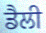
ਡੈਲੀ